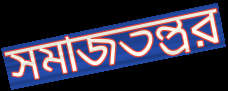
সমাজতন্ত্রর